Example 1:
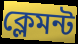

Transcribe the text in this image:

ক্লেমন্ট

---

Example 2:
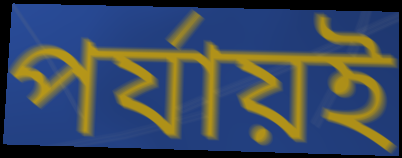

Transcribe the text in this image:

পর্যায়ই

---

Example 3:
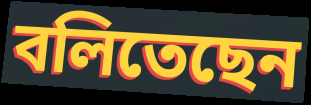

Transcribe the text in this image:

বলিতেছেন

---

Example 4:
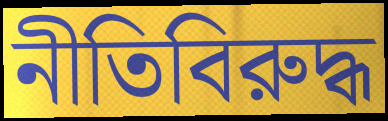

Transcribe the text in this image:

নীতিবিরুদ্ধ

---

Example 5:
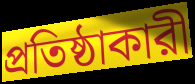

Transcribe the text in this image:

প্রতিষ্ঠাকারী